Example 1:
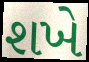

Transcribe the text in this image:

શખે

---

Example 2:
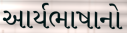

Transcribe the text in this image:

આર્યભાષાનો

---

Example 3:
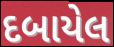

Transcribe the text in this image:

દબાયેલ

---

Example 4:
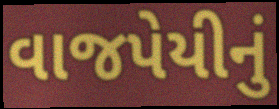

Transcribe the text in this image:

વાજપેયીનું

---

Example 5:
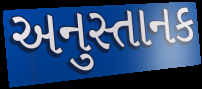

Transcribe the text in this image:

અનુસ્તાનક